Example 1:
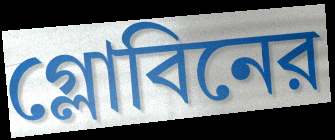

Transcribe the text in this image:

গ্লোবিনের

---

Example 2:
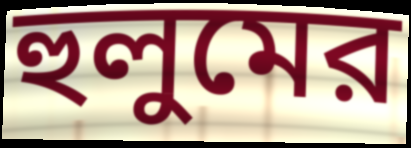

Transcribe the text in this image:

হুলুমের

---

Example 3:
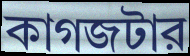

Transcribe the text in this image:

কাগজটার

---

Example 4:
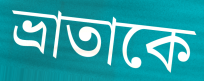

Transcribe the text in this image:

ভ্রাতাকে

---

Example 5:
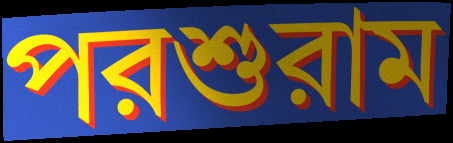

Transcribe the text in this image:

পরশুরাম